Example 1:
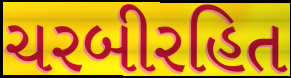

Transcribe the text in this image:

ચરબીરહિત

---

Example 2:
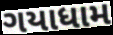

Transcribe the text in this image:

ગયાધામ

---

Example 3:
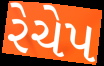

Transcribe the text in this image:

રેચેપ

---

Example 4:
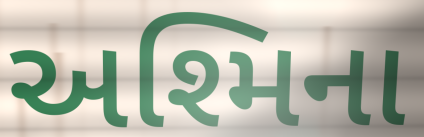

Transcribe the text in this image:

અશ્મિના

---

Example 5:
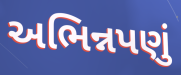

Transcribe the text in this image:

અભિન્નપણું